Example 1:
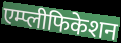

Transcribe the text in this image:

एम्प्लीफिकेशन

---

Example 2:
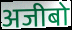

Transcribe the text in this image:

अजीबो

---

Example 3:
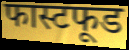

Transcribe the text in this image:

फास्टफूड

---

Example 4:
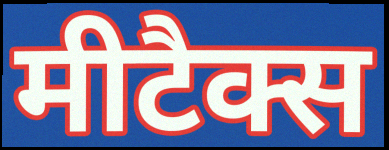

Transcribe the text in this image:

मीटैक्स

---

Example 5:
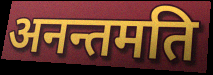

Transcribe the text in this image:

अनन्तमति